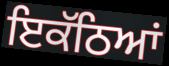
ਇਕੱਠਿਆਂ